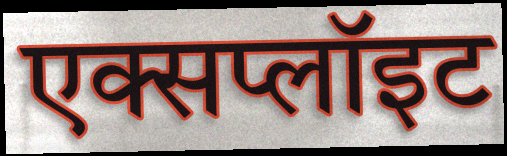
एक्सप्लॉइट